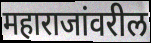
महाराजांवरील